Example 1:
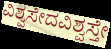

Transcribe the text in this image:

ವಿಶ್ವಸೇದವಿಶ್ವಸ್ತೇ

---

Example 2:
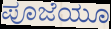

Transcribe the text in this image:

ಪೂಜೆಯೂ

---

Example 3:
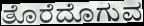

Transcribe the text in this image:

ತೊರೆದೊಗುವ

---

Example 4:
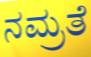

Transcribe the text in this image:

ನಮ್ರತೆ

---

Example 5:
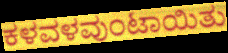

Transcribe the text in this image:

ಕಳವಳವುಂಟಾಯಿತು